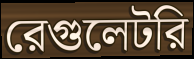
রেগুলেটরি